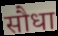
सौधा